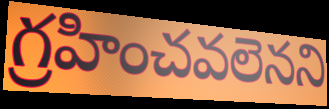
గ్రహించవలెనని